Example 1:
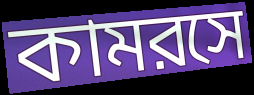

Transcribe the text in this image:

কামরসে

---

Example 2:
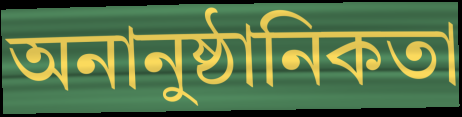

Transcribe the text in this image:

অনানুষ্ঠানিকতা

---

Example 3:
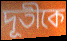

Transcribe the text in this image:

দূতীকে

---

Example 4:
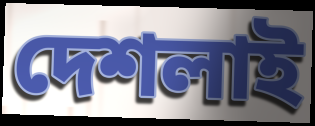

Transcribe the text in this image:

দেশলাই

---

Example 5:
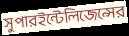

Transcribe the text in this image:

সুপারইন্টেলিজেন্সের